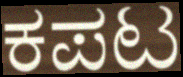
ಕಪಟ